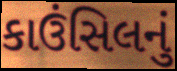
કાઉંસિલનું